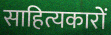
साहित्यकारों